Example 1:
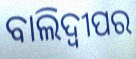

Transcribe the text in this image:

ବାଲିଦ୍ୱୀପର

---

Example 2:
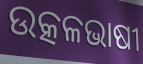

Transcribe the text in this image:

ଉତ୍କଳଭାଷୀ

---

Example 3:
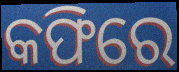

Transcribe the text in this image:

କଫିରେ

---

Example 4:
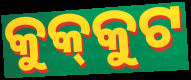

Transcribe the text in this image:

କୁକ୍‍କୁଟ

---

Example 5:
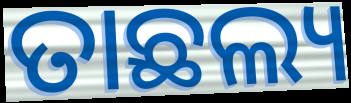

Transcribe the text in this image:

ତାଛଲ୍ୟ